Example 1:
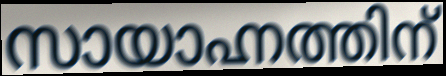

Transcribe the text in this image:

സായാഹ്നത്തിന്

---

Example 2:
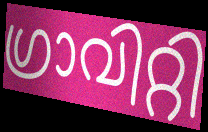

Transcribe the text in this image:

ഗ്രാവിറ്റി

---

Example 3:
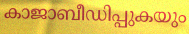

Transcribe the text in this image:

കാജാബീഡിപ്പുകയും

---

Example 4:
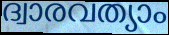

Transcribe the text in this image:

ദ്വാരവത്യാം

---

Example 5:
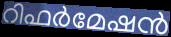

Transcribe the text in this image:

റിഫർമേഷൻ